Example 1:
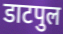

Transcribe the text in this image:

डाटपुल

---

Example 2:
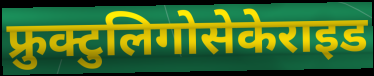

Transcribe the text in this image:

फ्रुक्टुलिगोसेकेराइड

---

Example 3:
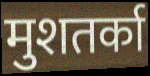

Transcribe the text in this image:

मुशतर्का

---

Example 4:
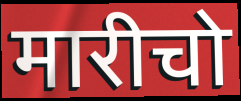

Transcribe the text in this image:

मारीचो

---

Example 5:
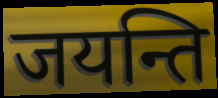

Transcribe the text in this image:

जयन्ति